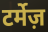
टर्मेज़